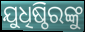
ଯୁଧିଷ୍ଠିରଙ୍କୁ